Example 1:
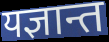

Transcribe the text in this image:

यज्ञान्त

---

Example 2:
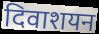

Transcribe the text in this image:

दिवाशयन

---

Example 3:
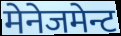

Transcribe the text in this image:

मेनेजमेन्ट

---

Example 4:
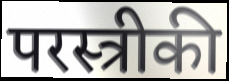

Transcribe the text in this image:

परस्त्रीकी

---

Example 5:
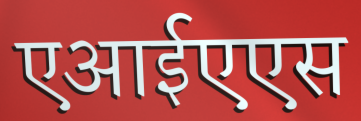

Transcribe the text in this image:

एआईएएस